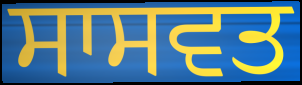
ਸਾਸਵਤ